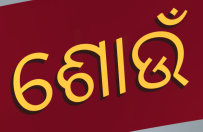
ଶୋଉଁ